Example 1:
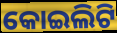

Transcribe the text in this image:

କୋଇଲିଟି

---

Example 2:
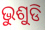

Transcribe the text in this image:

ଭୁଶୁଡି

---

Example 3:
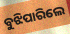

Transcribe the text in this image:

ବୁଝିପାରିଲେ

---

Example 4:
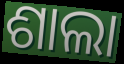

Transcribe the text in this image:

ଶାଲା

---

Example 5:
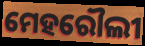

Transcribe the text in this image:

ମେହରୌଲୀ